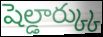
షెల్డార్క్కు